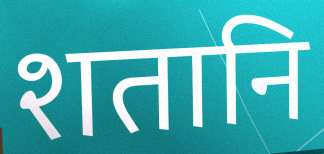
शतानि